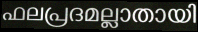
ഫലപ്രദമല്ലാതായി